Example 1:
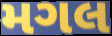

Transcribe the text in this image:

મગલ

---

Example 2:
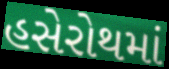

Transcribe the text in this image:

હસેરોથમાં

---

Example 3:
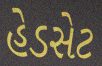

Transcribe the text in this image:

હેડસેટ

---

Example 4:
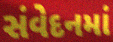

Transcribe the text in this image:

સંવેદનમાં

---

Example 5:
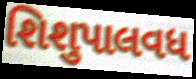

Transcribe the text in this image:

શિશુપાલવધ